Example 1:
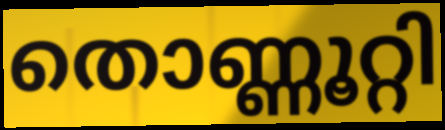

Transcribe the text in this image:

തൊണ്ണൂറ്റി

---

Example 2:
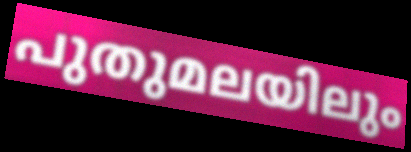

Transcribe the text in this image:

പുതുമലയിലും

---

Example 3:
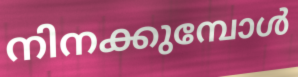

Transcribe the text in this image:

നിനക്കുമ്പോൾ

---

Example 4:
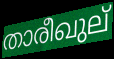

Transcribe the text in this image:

താരീഖുല്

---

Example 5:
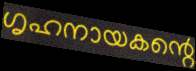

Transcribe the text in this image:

ഗൃഹനായകന്റെ